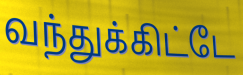
வந்துக்கிட்டே